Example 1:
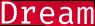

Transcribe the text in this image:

Dream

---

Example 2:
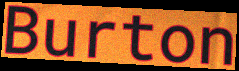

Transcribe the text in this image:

Burton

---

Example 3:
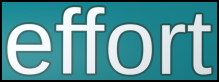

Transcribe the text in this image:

effort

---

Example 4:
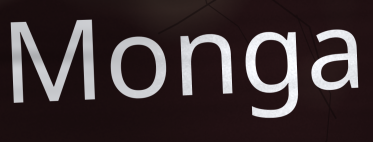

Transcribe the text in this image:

Monga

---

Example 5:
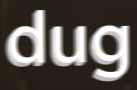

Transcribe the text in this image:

dug